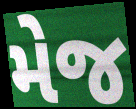
મેજ